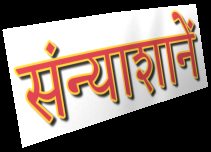
संन्याशानें